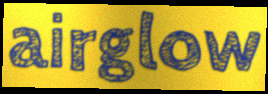
airglow